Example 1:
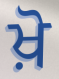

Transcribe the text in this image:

ਖ਼ੋ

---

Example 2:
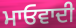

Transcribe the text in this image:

ਮਾਓਵਾਦੀ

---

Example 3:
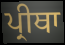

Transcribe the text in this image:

ਪ੍ਰੀਥਾ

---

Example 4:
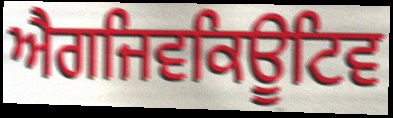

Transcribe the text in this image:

ਐਗਜਿਵਕਿਊਟਿਵ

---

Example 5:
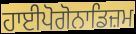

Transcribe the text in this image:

ਹਾਈਪੋਗੋਨਾਡਿਜ਼ਮ